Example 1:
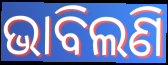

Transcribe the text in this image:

ଭାବିଲଣି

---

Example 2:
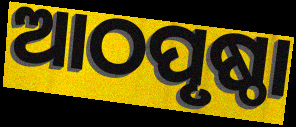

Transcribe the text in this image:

ଆଠପୃଷ୍ଠା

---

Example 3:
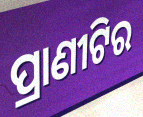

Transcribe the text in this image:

ପ୍ରାଣୀଟିର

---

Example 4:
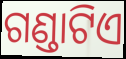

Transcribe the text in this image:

ଗଣ୍ଡାଟିଏ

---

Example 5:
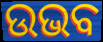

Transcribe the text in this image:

ଉଭବ